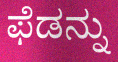
ಫೆಡನ್ನು